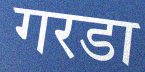
गरडा